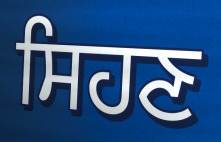
ਸਿਹਣ